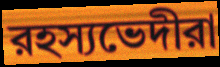
রহস্যভেদীরা